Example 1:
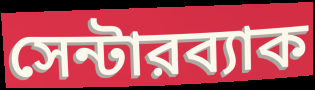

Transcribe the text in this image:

সেন্টারব্যাক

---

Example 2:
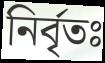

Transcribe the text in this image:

নির্বৃতঃ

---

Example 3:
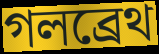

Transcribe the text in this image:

গলব্রেথ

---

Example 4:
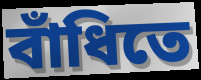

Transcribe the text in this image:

বাঁধিতে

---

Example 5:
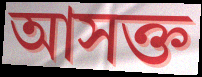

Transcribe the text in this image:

আসক্ত